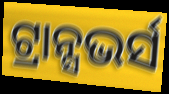
ଟ୍ରାନ୍ସଭର୍ସ